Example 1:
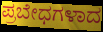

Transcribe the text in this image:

ಪ್ರಬೇಧಗಳಾದ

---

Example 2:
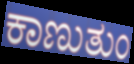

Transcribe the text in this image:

ಕಾಣುತುಂ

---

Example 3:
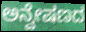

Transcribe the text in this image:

ಅನ್ವೇಷಣದ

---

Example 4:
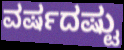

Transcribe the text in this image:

ವರ್ಷದಷ್ಟು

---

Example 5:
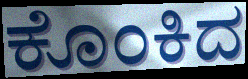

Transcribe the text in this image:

ಕೊಂಕಿದ